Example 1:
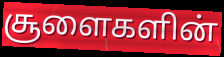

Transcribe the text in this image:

சூளைகளின்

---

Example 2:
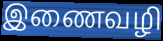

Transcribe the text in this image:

இணைவழி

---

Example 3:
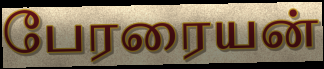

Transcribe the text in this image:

பேரரையன்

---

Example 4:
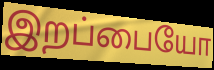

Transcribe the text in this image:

இறப்பையோ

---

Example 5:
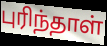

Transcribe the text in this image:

புரிந்தாள்